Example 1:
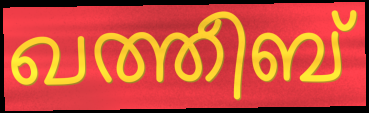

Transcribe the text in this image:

ഖത്തീബ്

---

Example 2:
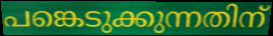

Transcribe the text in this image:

പങ്കെടുക്കുന്നതിന്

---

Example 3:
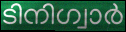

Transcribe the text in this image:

ടിനിഗ്വാർ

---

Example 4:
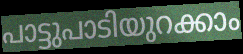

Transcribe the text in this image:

പാട്ടുപാടിയുറക്കാം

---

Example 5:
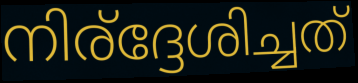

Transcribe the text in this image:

നിര്ദ്ദേശിച്ചത്